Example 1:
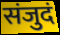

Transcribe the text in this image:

संजुदं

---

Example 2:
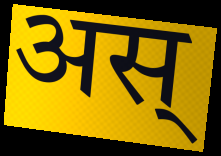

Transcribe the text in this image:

अस्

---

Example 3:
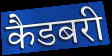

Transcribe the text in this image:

कैडबरी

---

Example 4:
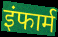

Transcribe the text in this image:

इंफार्म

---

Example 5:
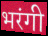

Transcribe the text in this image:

भरंगी